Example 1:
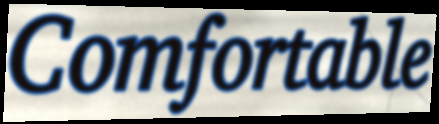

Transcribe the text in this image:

Comfortable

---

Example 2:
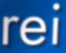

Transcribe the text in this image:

rei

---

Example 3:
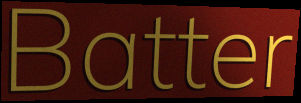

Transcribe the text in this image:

Batter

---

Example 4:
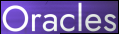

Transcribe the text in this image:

Oracles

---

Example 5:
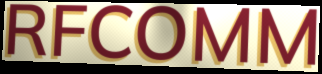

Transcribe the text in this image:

RFCOMM